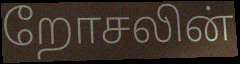
றோசலின்